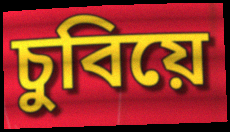
চুবিয়ে